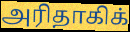
அரிதாகிக்